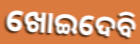
ଖୋଇଦେବି